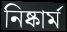
নিষ্কার্ম